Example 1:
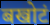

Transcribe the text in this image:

बखोटं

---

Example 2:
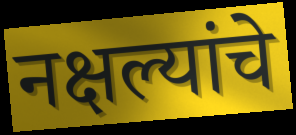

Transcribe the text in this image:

नक्षल्यांचे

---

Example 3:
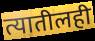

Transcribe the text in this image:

त्यातीलही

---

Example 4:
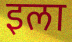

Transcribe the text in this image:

इला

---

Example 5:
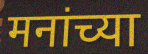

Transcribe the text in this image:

मनांच्या